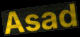
Asad